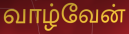
வாழ்வேன்